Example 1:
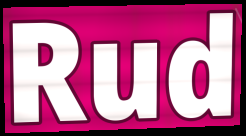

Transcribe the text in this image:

Rud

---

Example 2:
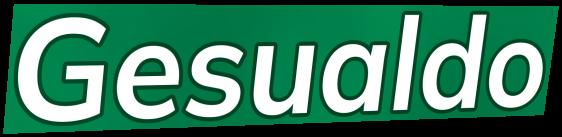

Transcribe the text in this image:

Gesualdo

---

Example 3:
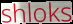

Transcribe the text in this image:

shloks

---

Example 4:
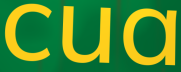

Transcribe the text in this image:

cua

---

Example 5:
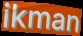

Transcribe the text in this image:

ikman